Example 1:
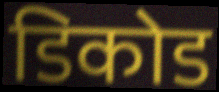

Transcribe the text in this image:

डिकोड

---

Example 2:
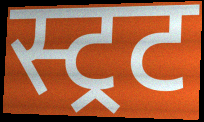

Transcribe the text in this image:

स्ट्रट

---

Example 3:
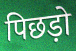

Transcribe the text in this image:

पिछड़ो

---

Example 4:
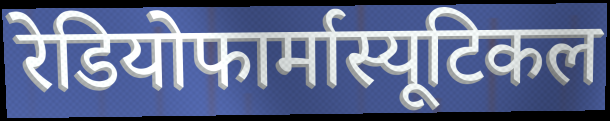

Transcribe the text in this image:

रेडियोफार्मास्यूटिकल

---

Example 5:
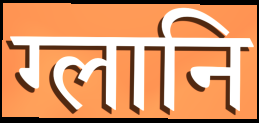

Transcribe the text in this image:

ग्लानि